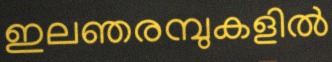
ഇലഞരമ്പുകളിൽ